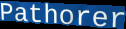
Pathorer